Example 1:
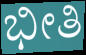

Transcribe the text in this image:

ಭೀತಿ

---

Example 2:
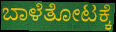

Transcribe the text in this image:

ಬಾಳೆತೋಟಕ್ಕೆ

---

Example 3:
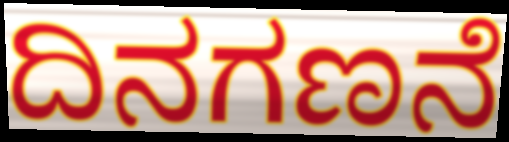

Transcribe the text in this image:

ದಿನಗಣನೆ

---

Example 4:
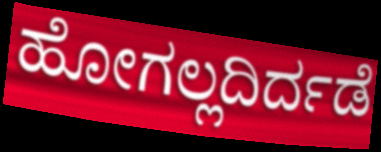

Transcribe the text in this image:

ಹೋಗಲ್ಲದಿರ್ದಡೆ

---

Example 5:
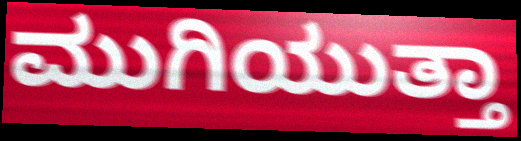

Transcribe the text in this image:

ಮುಗಿಯುತ್ತಾ